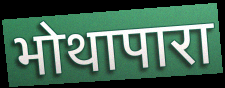
भोथापारा